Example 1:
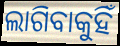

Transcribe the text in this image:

ଲାଗିବାକୁହିଁ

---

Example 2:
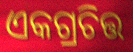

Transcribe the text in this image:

ଏକଗ୍ରଚିତ୍ତ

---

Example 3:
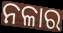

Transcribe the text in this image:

ନଳାର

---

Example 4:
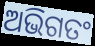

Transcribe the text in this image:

ଅଭିଗତଂ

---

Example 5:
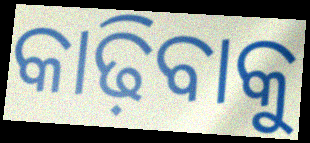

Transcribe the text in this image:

କାଢ଼ିବାକୁ